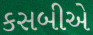
કસબીએ